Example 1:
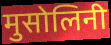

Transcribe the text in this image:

मुसोलिनी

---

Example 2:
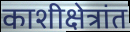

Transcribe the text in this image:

काशीक्षेत्रांत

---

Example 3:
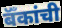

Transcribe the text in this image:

बॅँकांची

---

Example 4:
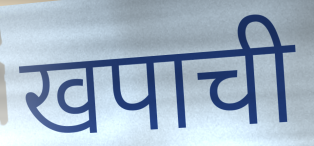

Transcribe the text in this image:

खपाची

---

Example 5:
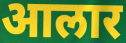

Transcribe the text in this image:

आलार